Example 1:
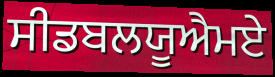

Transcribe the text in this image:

ਸੀਡਬਲਯੂਐਮਏ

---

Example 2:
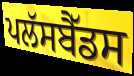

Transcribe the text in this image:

ਪਲੱਸਬੈੱਡਸ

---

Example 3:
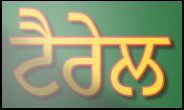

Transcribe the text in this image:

ਟੈਰੇਲ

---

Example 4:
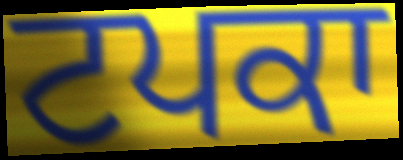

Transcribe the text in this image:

ਟਪਕਾ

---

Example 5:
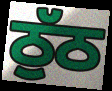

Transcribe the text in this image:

ਠੁੱਠ